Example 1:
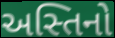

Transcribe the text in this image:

અસ્તિનો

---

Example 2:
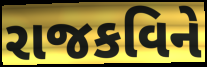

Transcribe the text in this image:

રાજકવિને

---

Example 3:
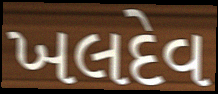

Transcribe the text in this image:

ખલદેવ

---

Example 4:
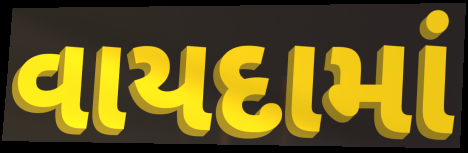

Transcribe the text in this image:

વાયદામાં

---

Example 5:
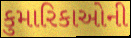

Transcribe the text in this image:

કુમારિકાઓની